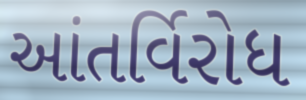
આંતર્વિરોધ